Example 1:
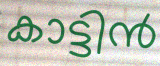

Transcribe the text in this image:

കാട്ടിൻ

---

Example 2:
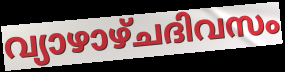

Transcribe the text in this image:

വ്യാഴാഴ്ചദിവസം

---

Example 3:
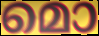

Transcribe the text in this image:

മൊ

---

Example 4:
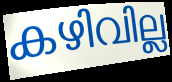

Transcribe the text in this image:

കഴിവില്ല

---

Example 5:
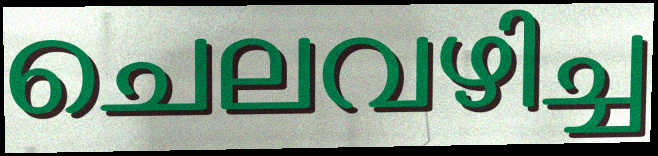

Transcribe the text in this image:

ചെലവഴിച്ച